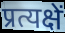
प्रत्यक्षें